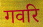
गवरि